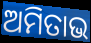
ଅମିତାଭ